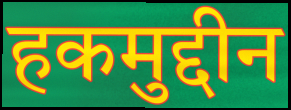
हकमुद्दीन